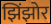
झिंझोर